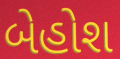
બેહોશ